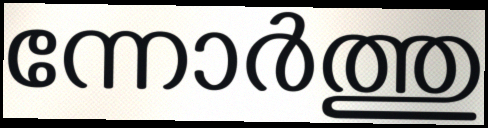
ന്നോർത്തു